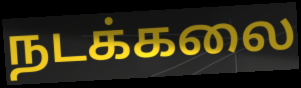
நடக்கலை